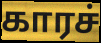
காரச்